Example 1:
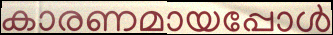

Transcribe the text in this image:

കാരണമായപ്പോൾ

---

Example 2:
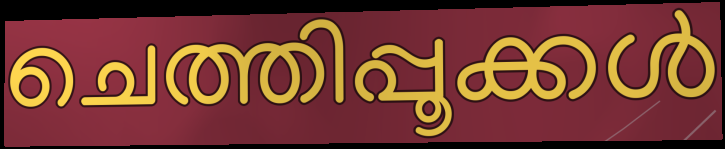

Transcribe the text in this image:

ചെത്തിപ്പൂക്കൾ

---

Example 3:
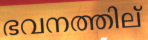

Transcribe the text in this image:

ഭവനത്തില്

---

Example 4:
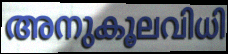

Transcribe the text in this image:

അനുകൂലവിധി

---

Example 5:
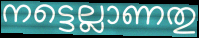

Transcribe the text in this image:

നട്ടെല്ലാണതു